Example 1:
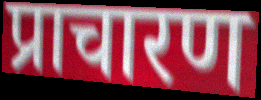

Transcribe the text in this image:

प्राचारण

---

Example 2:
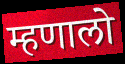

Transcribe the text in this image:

म्हणालो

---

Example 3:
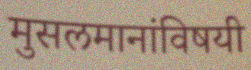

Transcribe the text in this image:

मुसलमानांविषयी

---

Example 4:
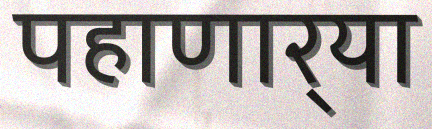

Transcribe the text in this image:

पहाणार्‍या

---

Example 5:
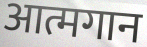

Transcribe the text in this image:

आत्मगान